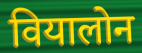
वियालोन